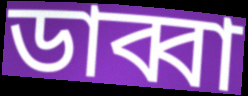
ডাব্বা